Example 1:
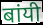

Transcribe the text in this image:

बांयी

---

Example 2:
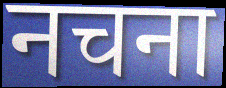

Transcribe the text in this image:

नचना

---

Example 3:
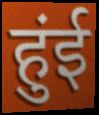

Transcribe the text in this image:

हुंई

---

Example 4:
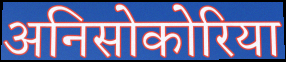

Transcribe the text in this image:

अनिसोकोरिया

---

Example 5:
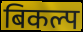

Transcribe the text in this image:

बिकल्प